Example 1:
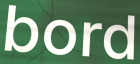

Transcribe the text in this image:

bord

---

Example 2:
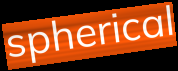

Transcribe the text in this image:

spherical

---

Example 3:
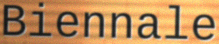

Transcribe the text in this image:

Biennale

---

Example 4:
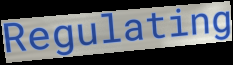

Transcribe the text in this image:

Regulating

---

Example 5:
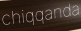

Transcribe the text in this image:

chiqqanda